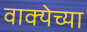
वाक्येच्या